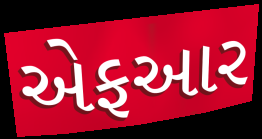
એફઆર